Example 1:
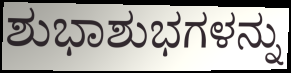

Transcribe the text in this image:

ಶುಭಾಶುಭಗಳನ್ನು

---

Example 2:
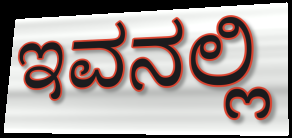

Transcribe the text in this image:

ಇವನಲ್ಲಿ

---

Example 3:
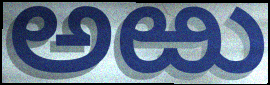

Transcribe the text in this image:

ಅಱು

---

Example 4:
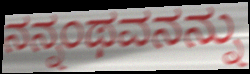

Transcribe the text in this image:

ನನ್ನಂಥವನನ್ನು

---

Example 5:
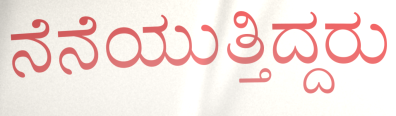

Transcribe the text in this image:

ನೆನೆಯುತ್ತಿದ್ದರು